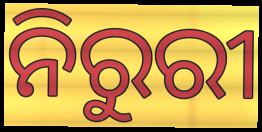
ନିରୁରୀ